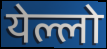
येल्लो